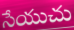
సేయుచు